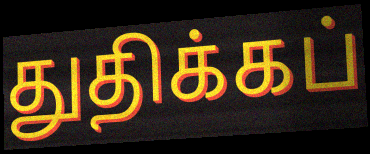
துதிக்கப்